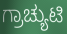
ಗ್ರಾಚ್ಯುಟಿ